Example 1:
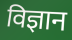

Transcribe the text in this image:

विज्ञान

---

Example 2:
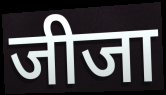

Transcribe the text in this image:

जीजा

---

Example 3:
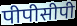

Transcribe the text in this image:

पीपीसीपी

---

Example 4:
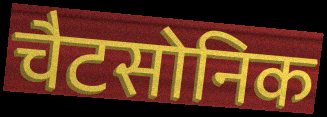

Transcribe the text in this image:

चैटसोनिक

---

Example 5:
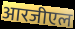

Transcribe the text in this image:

आरजीएल